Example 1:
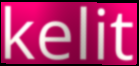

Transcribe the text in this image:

kelit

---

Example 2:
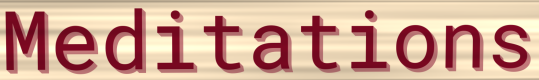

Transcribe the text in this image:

Meditations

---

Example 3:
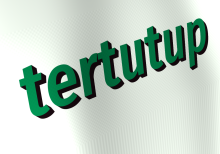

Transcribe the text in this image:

tertutup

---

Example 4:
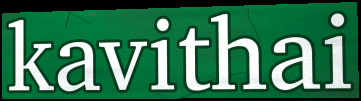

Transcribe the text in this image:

kavithai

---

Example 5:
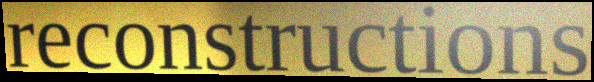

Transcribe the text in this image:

reconstructions